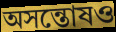
অসন্তোষও